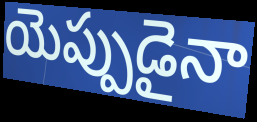
యెప్పుడైనా